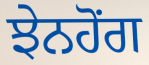
ਝੇਨਹੋਂਗ